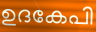
ഉദകേപി